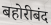
बहोरीबंद